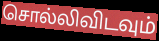
சொல்லிவிடவும்